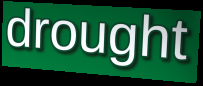
drought